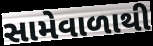
સામેવાળાથી